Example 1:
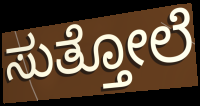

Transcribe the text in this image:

ಸುತ್ತೋಲೆ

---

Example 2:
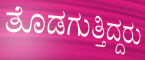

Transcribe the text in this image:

ತೊಡಗುತ್ತಿದ್ದರು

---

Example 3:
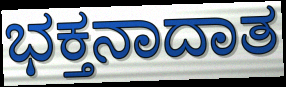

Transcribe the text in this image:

ಭಕ್ತನಾದಾತ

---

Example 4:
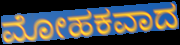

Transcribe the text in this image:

ಮೋಹಕವಾದ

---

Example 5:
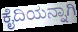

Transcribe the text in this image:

ಕೈದಿಯನ್ನಾಗಿ